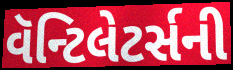
વૅન્ટિલેટર્સની